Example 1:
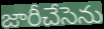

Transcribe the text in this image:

జారీచేసెను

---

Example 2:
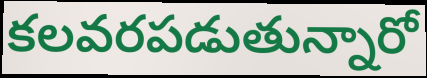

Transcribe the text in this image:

కలవరపడుతున్నారో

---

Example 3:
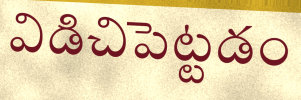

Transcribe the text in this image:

విడిచిపెట్టడం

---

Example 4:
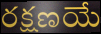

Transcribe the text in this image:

రక్షణయే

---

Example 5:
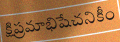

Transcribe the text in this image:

క్షిప్రమాభిషేచనికీం